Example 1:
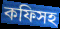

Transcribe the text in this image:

কফিসহ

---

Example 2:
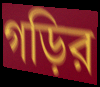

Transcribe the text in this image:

গড়ির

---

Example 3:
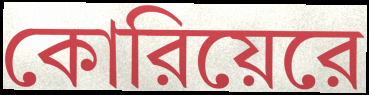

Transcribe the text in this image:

কোরিয়েরে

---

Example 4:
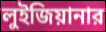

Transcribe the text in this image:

লুইজিয়ানার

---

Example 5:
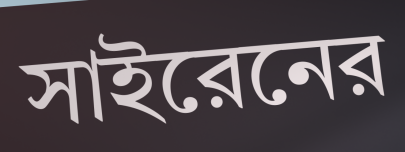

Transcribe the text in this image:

সাইরেনের